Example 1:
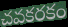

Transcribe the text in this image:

చవకరకం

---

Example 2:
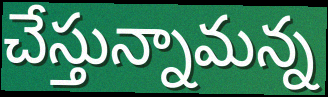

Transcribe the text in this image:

చేస్తున్నామన్న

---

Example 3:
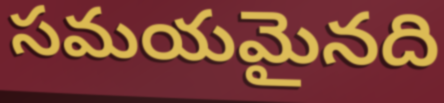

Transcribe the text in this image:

సమయమైనది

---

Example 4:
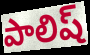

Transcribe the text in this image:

పాలిష్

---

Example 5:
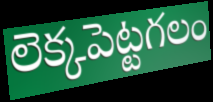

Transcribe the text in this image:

లెక్కపెట్టగలం